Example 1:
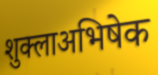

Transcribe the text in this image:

शुक्लाअभिषेक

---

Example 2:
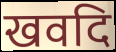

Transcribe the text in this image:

खवदि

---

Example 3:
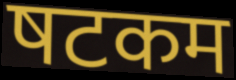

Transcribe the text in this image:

षटकम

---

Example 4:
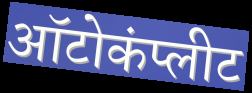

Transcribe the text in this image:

ऑटोकंप्लीट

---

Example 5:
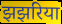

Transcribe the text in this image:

झझरिया